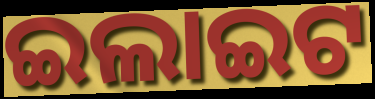
ଇଲାଇଟ